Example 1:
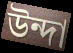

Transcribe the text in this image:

উন্দা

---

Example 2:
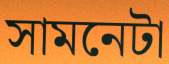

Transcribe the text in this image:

সামনেটা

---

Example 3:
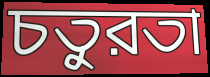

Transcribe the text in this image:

চতুরতা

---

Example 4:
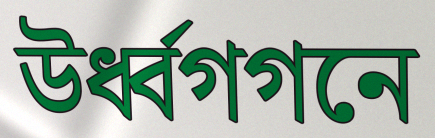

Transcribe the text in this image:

উর্ধ্বগগনে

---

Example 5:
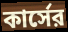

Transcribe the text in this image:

কার্সের